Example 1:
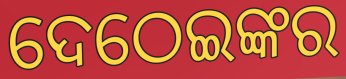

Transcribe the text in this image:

ଦେଠେଇଙ୍କର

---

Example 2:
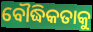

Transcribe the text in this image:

ବୌଦ୍ଧିକତାକୁ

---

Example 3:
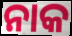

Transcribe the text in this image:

ନାକ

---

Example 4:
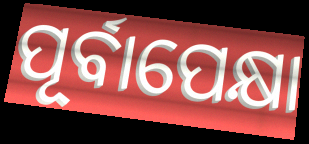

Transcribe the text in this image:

ପୂର୍ବାପେକ୍ଷା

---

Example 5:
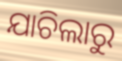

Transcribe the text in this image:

ଯାଚିଲାରୁ